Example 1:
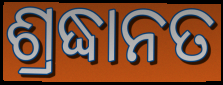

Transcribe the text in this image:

ଶ୍ରଦ୍ଧାନତ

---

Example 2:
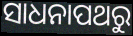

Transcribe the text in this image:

ସାଧନାପଥରୁ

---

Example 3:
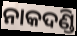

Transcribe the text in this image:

ନାକଦଣ୍ଡି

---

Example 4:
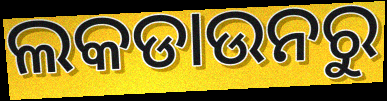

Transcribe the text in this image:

ଲକଡାଉନରୁ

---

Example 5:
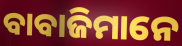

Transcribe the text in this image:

ବାବାଜିମାନେ